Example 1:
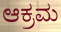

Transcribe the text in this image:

ಆಕ್ರಮ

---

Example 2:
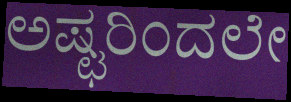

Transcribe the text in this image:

ಅಷ್ಟರಿಂದಲೇ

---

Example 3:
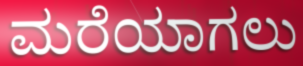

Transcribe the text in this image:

ಮರೆಯಾಗಲು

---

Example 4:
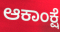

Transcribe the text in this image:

ಆಕಾಂಕ್ಷೆ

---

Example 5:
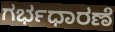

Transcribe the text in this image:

ಗರ್ಭಧಾರಣೆ